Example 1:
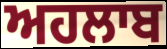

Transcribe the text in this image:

ਅਹਲਾਬ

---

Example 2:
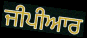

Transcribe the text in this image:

ਜੀਪੀਆਰ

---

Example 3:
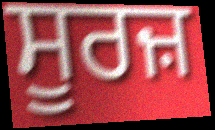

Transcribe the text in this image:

ਸੂਰਜ਼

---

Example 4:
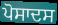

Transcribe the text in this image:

ਪੋਸਾਦਸ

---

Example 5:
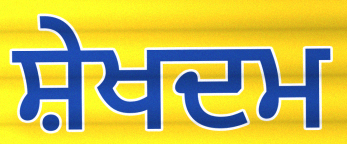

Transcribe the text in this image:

ਸ਼ੇਖਦਮ